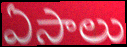
ఏసాలు